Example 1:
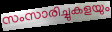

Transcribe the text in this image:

സംസാരിച്ചുകളയും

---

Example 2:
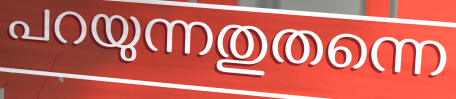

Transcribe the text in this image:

പറയുന്നതുതന്നെ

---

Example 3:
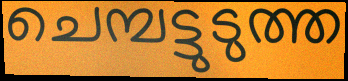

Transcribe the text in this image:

ചെമ്പട്ടുടുത്ത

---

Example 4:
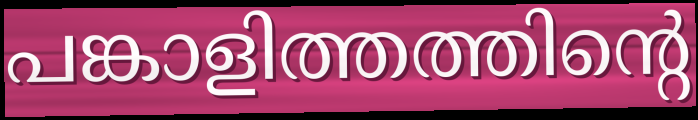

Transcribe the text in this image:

പങ്കാളിത്തത്തിന്റെ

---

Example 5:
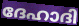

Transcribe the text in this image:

ദേഹാദി